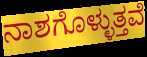
ನಾಶಗೊಳ್ಳುತ್ತವೆ